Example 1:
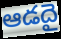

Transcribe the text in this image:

ఆడదై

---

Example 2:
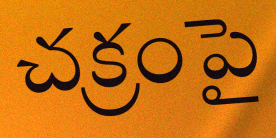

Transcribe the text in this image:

చక్రంపై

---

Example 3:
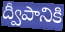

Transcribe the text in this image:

ద్వీపానికి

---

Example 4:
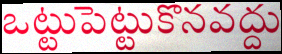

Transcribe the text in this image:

ఒట్టుపెట్టుకొనవద్దు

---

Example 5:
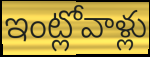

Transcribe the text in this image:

ఇంట్లోవాళ్లు